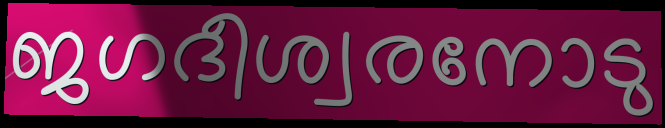
ജഗദീശ്വരനോടു